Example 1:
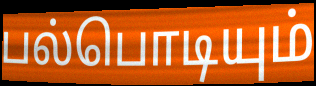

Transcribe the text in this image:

பல்பொடியும்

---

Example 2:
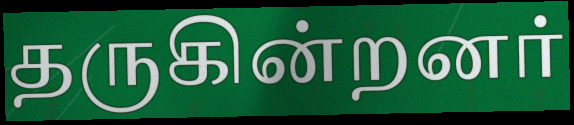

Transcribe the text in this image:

தருகின்றனர்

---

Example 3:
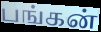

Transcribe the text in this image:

பங்கன்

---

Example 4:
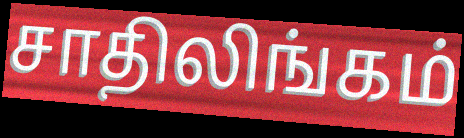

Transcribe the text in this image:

சாதிலிங்கம்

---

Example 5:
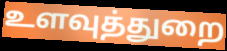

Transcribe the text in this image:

உளவுத்துறை